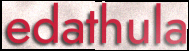
edathula